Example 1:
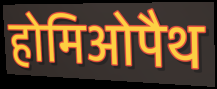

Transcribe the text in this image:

होमिओपैथ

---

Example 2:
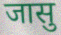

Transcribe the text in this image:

जासु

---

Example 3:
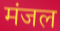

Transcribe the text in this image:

मंजल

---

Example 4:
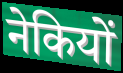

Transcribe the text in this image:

नेकियों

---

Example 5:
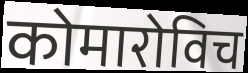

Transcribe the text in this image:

कोमारोविच